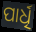
ପାର୍ଧି